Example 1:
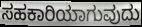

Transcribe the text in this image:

ಸಹಕಾರಿಯಾಗುವುದು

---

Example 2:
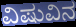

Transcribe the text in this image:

ವಿಷುವಿನ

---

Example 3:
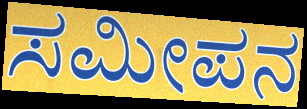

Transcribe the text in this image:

ಸಮೀಪನ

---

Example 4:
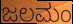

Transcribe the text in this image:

ಜಲಮಂ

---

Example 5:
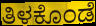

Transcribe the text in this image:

ತಿಳಕೊಂಡೆ